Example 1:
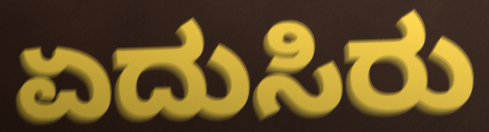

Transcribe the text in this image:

ಏದುಸಿರು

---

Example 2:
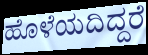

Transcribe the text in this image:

ಹೊಳೆಯದಿದ್ದರೆ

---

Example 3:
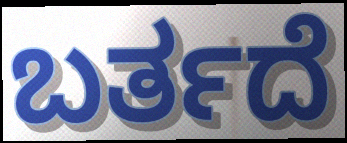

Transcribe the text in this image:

ಬರ್ತದೆ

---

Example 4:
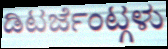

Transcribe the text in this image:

ಡಿಟರ್ಜೆಂಟ್ಗಳು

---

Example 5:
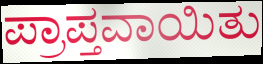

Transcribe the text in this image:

ಪ್ರಾಪ್ತವಾಯಿತು